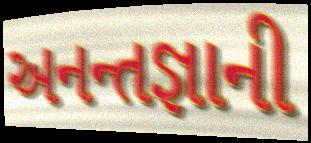
અનન્તજ્ઞાની